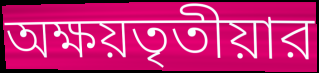
অক্ষয়তৃতীয়ার